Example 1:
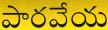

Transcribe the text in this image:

పారవేయ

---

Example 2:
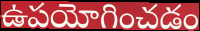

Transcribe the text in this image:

ఉపయోగించడం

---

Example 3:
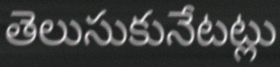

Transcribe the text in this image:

తెలుసుకునేటట్లు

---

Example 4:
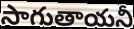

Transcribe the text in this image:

సాగుతాయనీ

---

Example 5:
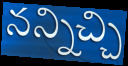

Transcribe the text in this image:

నన్నిచ్చి